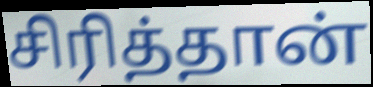
சிரித்தான்